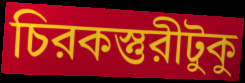
চিরকস্তুরীটুকু